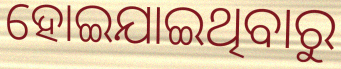
ହୋଇଯାଇଥିବାରୁ